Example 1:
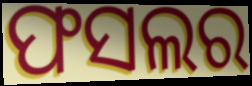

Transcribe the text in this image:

ଫସଲର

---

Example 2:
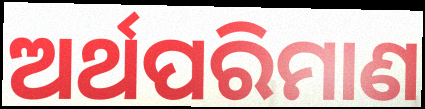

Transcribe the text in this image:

ଅର୍ଥପରିମାଣ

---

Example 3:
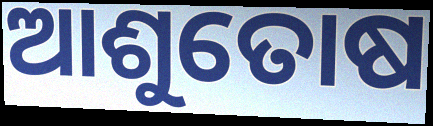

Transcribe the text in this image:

ଆଶୁତୋଷ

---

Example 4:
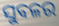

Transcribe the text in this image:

ସୁବଳର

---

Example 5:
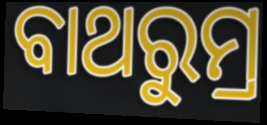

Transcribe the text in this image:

ବାଥରୁମ୍ର